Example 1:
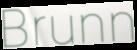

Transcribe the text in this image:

Brunn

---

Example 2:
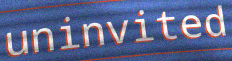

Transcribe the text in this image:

uninvited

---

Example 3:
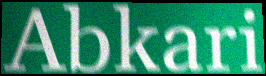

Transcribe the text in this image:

Abkari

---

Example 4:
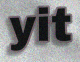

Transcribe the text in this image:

yit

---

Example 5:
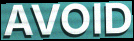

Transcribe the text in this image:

AVOID